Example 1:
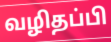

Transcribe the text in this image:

வழிதப்பி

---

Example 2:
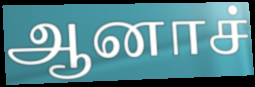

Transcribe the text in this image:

ஆனாச்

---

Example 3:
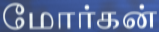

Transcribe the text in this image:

மோர்கன்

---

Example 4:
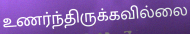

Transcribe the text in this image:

உணர்ந்திருக்கவில்லை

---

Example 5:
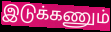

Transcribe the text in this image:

இடுக்கணும்